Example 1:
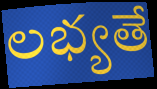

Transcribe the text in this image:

లభ్యతే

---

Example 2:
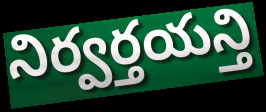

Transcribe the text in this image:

నిర్వర్తయన్తి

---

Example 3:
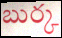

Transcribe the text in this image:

బుర్క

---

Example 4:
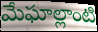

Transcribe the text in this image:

మేఘాల్లాంటి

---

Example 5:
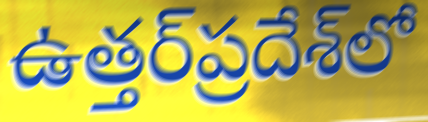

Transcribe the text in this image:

ఉత్తర్‌ప్రదేశ్‌లో